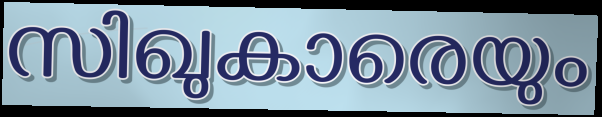
സിഖുകാരെയും